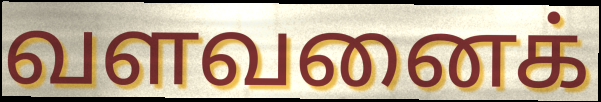
வளவனைக்